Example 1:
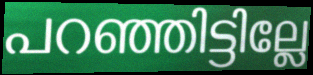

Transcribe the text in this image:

പറഞ്ഞിട്ടില്ലേ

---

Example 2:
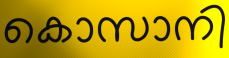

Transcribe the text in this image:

കൊസാനി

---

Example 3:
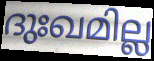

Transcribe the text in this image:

ദുഃഖമില്ല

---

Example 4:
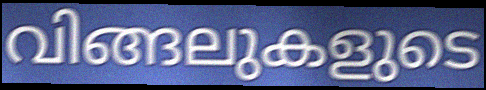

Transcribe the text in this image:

വിങ്ങലുകളുടെ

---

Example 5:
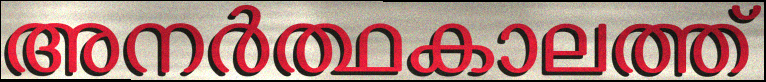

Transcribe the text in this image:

അനർത്ഥകാലത്ത്